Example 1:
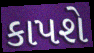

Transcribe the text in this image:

કાપશે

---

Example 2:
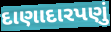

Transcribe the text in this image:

દાણાદારપણું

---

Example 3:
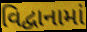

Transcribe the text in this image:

વિદ્વાનામાં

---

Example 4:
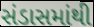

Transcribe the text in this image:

સંડાસમાંથી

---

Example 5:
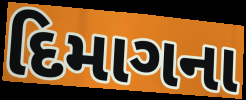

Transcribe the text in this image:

દિમાગના